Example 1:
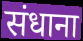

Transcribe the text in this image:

संधाना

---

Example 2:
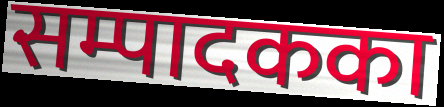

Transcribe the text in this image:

सम्पादकका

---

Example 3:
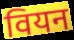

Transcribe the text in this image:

वियन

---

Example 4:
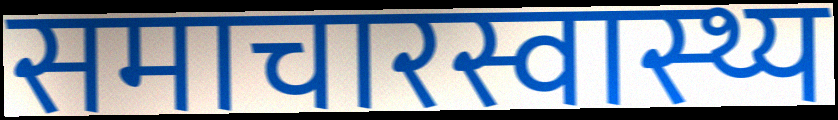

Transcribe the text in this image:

समाचारस्वास्थ्य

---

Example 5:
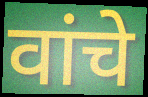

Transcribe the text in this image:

वांचे